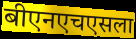
बीएनएचएसला